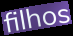
filhos